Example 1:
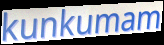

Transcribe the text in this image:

kunkumam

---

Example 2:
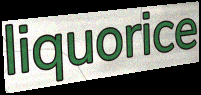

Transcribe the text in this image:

liquorice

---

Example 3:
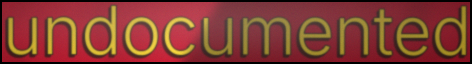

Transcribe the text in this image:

undocumented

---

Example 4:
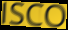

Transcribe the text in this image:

ISCO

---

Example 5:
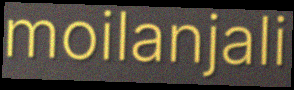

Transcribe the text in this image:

moilanjali